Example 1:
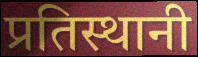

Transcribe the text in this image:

प्रतिस्थानी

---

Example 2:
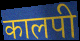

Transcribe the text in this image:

कालपी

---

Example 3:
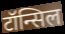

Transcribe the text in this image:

टॉन्सिल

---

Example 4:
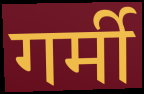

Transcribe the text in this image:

गर्मी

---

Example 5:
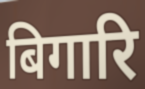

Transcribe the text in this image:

बिगारि